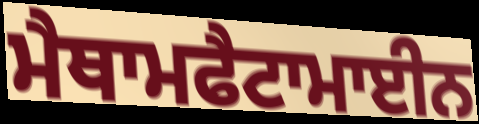
ਮੈਥਾਮਫੈਟਾਮਾਈਨ